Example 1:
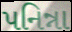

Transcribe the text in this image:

પનિન્ના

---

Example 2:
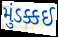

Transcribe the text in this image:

મુંડક્કઈ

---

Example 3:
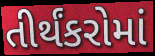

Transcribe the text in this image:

તીર્થંકરોમાં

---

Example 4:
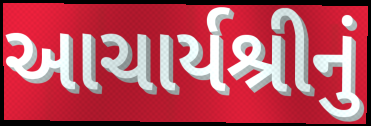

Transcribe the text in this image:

આચાર્યશ્રીનું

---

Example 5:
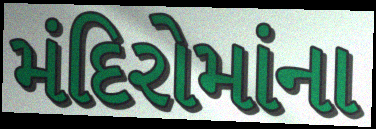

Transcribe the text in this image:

મંદિરોમાંના